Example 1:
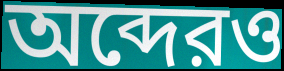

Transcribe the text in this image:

অব্দেরও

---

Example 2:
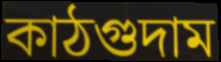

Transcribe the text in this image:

কাঠগুদাম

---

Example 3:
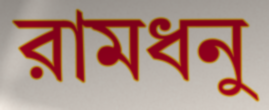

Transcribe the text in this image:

রামধনু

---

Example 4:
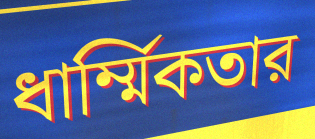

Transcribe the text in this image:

ধার্ম্মিকতার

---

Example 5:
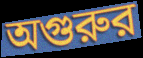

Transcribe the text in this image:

অগুরুর